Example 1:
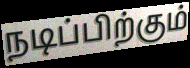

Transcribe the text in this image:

நடிப்பிற்கும்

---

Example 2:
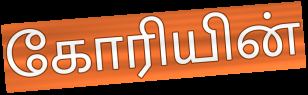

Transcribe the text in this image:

கோரியின்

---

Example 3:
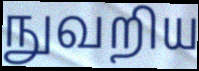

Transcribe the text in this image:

நுவறிய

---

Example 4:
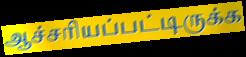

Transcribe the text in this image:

ஆச்சரியப்பட்டிருக்க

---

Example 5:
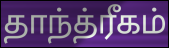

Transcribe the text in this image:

தாந்த்ரீகம்